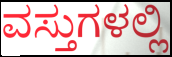
ವಸ್ತುಗಳಲ್ಲಿ